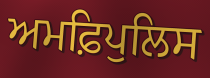
ਅਮਫ਼ਿਪੁਲਿਸ